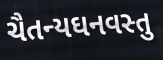
ચૈતન્યઘનવસ્તુ